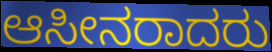
ಆಸೀನರಾದರು